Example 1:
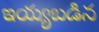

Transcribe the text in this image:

ఇయ్యబడిన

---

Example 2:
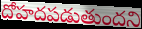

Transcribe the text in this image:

దోహదపడుతుందని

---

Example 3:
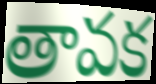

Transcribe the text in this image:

తావక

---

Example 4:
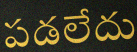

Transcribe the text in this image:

పడలేదు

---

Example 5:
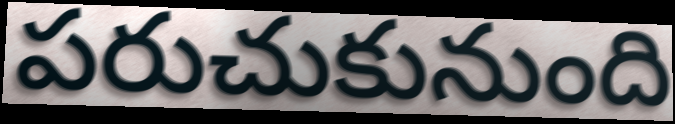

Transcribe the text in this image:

పరుచుకునుంది